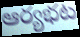
ఆర్యభట